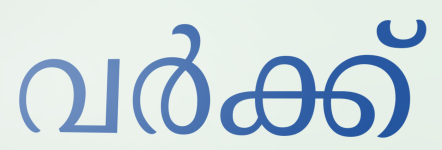
വർക്ക്